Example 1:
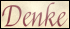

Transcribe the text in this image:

Denke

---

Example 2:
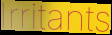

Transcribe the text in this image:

Irritants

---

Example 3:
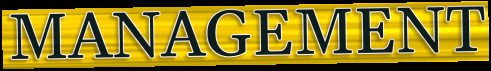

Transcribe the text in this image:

MANAGEMENT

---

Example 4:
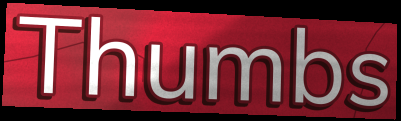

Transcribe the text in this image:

Thumbs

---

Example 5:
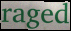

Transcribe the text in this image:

raged